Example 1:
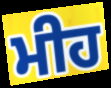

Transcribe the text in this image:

ਮੀਹ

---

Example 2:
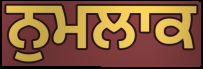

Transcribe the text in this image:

ਨੁਮਲਾਕ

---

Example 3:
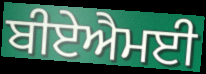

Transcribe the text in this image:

ਬੀਏਐਮਈ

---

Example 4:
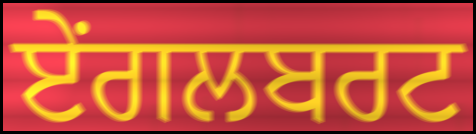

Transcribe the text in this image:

ਏਂਗਲਬਰਟ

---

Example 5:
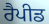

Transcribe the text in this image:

ਰੈਪੀਡ